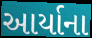
આર્યાના